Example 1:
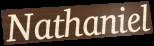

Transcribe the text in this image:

Nathaniel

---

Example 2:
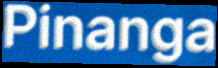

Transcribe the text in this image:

Pinanga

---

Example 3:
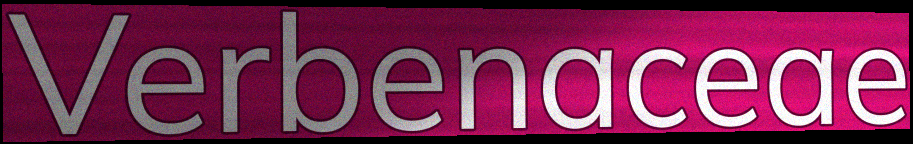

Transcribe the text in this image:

Verbenaceae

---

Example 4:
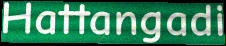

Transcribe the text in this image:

Hattangadi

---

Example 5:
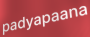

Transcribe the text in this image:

padyapaana